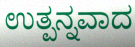
ಉತ್ಪನ್ನವಾದ